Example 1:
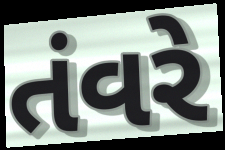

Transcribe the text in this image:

તંવરે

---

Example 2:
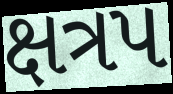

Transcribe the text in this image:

ક્ષત્રપ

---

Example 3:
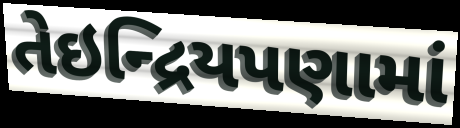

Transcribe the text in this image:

તેઇન્દ્રિયપણામાં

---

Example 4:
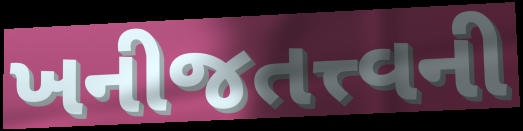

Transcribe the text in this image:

ખનીજતત્ત્વની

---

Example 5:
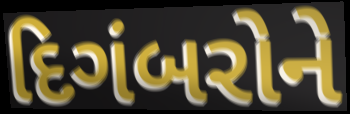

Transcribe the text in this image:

દિગંબરોને